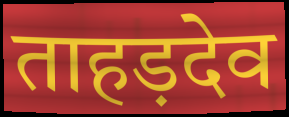
ताहड़देव